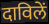
दाविलें